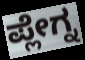
ಪ್ಲೇಗ್ನ